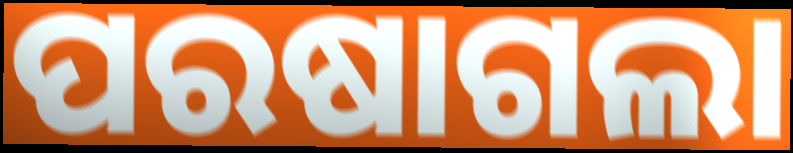
ପରଷାଗଲା